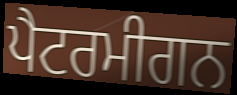
ਪੈਟਰਮੀਗਨ